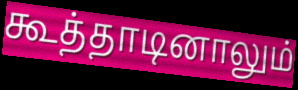
கூத்தாடினாலும்